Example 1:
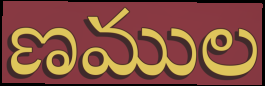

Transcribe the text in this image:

ణముల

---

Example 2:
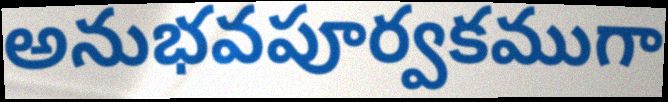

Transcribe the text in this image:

అనుభవపూర్వకముగా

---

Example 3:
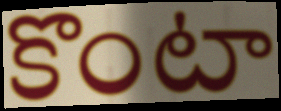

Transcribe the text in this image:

కొంటా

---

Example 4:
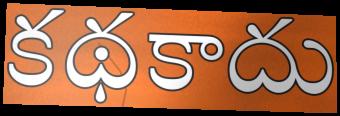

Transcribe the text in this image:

కథకాదు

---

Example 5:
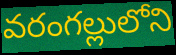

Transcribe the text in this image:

వరంగల్లులోని